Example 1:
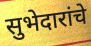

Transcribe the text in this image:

सुभेदारांचे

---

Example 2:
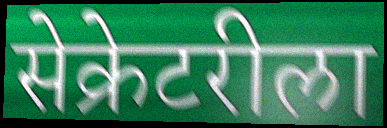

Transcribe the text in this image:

सेक्रेटरीला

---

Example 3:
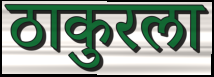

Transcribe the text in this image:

ठाकुरला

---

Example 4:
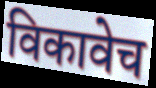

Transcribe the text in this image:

विकावेच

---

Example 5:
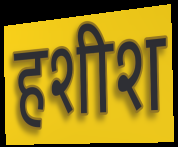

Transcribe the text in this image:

हशीश